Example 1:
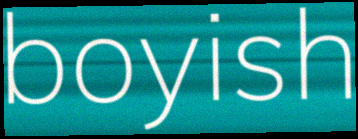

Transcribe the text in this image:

boyish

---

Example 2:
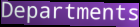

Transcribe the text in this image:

Departments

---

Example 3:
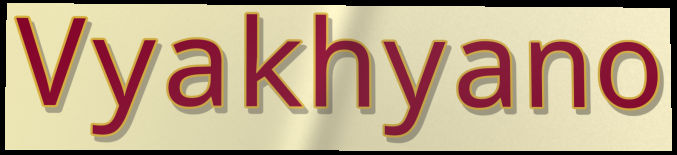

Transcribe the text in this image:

Vyakhyano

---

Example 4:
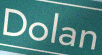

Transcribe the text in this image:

Dolan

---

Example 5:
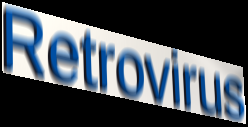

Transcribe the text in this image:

Retrovirus